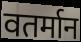
वतर्मान